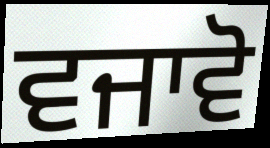
ਵਜਾਵੋ